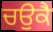
ਚਉਕੈ